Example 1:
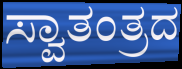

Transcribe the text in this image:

ಸ್ವಾತಂತ್ರದ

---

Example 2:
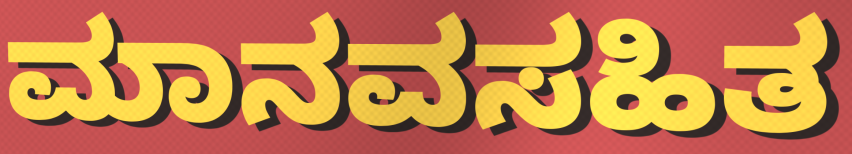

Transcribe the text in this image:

ಮಾನವಸಹಿತ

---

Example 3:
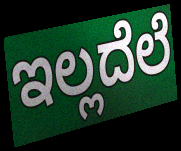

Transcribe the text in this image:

ಇಲ್ಲದೆಲೆ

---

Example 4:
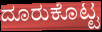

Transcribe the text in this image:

ದೂರುಕೊಟ್ಟ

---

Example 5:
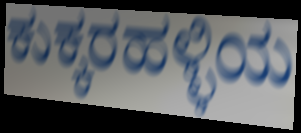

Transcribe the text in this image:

ಕುಕ್ಕರಹಳ್ಳಿಯ